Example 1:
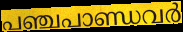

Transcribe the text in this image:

പഞ്ചപാണ്ഡവർ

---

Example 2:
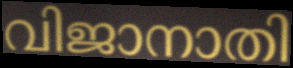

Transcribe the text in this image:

വിജാനാതി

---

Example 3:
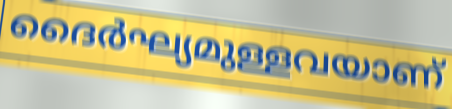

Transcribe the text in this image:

ദൈർഘ്യമുള്ളവയാണ്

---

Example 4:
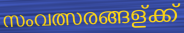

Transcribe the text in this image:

സംവത്സരങ്ങള്ക്ക്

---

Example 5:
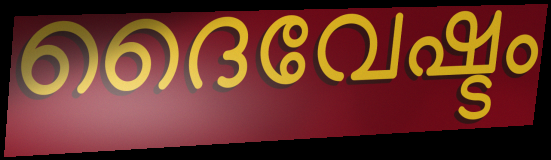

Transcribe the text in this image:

ദൈവേഷ്ടം